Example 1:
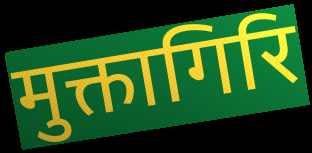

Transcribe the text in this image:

मुक्तागिरि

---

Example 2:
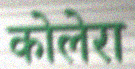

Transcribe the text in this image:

कोलेरा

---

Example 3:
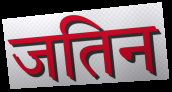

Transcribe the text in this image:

जतिन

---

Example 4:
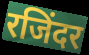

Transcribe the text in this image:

रजिंदर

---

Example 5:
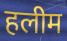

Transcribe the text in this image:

हलीम